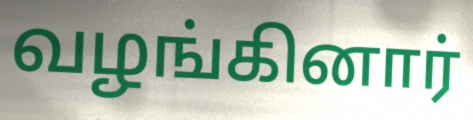
வழங்கினார்